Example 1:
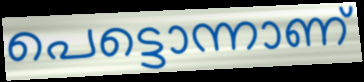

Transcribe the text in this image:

പെട്ടൊന്നാണ്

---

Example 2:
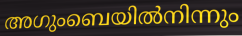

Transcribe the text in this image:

അഗുംബെയിൽനിന്നും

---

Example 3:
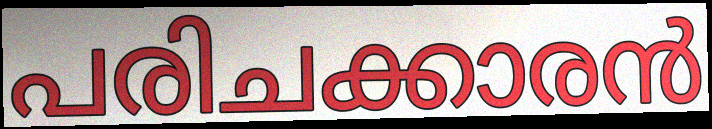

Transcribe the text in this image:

പരിചക്കാരൻ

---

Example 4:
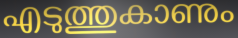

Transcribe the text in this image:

എടുത്തുകാണും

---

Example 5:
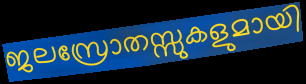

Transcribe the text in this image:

ജലസ്രോതസ്സുകളുമായി